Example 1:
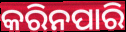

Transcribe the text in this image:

କରିନପାରି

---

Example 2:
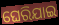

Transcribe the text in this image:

ଘେରିଯାଇ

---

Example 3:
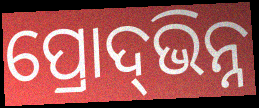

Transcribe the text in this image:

ପ୍ରୋଦ୍‌ଭିନ୍ନ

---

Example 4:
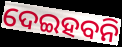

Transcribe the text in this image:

ଦେଇହବନି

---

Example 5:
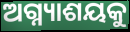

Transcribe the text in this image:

ଅଗ୍ନ୍ୟାଶୟକୁ